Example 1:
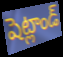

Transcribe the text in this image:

షెట్లాండ్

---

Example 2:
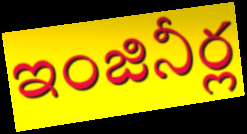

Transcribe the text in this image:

ఇంజినీర్ల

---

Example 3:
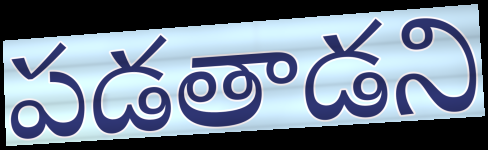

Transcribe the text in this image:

పడతాడని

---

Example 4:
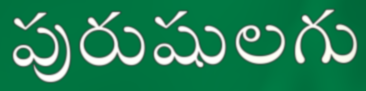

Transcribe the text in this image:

పురుషులగు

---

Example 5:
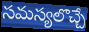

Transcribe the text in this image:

సమస్యలొచ్చే